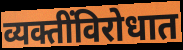
व्यक्तींविरोधात